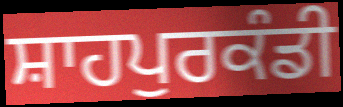
ਸ਼ਾਹਪੁਰਕੰਡੀ